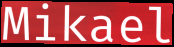
Mikael